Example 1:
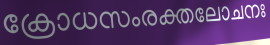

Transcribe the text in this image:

ക്രോധസംരക്തലോചനഃ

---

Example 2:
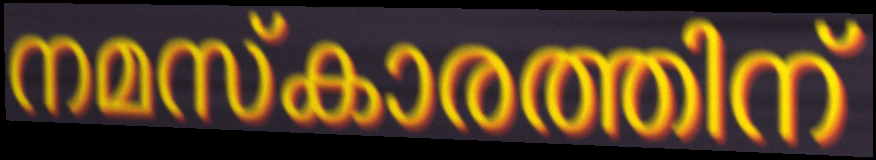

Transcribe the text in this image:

നമസ്‌കാരത്തിന്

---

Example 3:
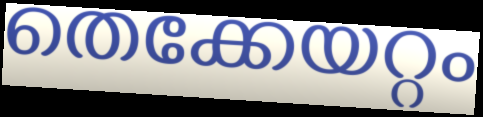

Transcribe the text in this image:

തെക്കേയറ്റം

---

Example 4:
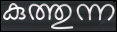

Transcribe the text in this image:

കുത്തുന്ന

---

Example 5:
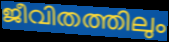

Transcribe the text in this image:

ജീവിതത്തിലും